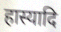
हास्यादि